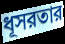
ধূসরতার